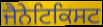
ਜੈਨੇਟਿਕਿਸਟ